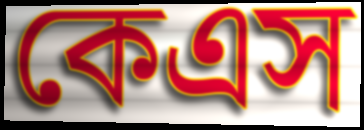
কেএস